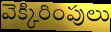
వెక్కిరింపులు